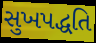
સુખપદ્ધતિ